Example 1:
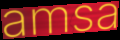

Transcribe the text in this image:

amsa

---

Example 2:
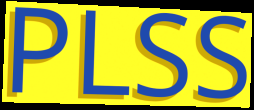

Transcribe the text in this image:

PLSS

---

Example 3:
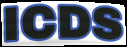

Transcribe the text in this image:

ICDS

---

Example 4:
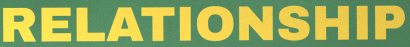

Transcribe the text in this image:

RELATIONSHIP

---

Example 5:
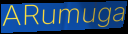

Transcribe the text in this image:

ARumuga